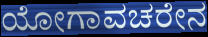
ಯೋಗಾವಚರೇನ